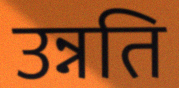
उन्नति